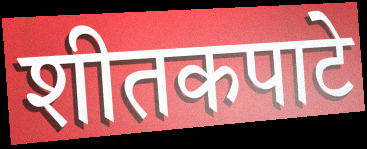
शीतकपाटे